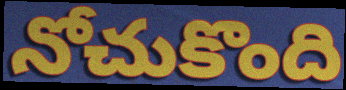
నోచుకొంది